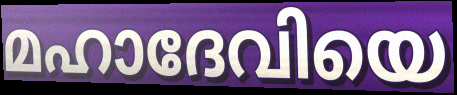
മഹാദേവിയെ